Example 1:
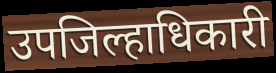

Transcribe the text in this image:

उपजिल्हाधिकारी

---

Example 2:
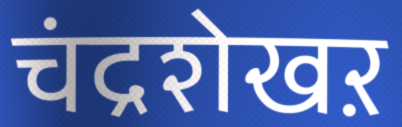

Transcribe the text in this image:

चंद्रशेखऱ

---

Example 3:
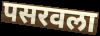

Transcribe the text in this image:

पसरवला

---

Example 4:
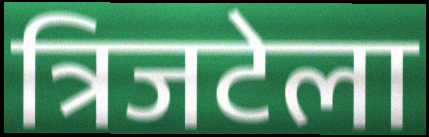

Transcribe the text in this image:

त्रिजटेला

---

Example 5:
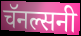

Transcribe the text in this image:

चॅनल्सनी